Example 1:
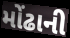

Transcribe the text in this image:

મોંઢાની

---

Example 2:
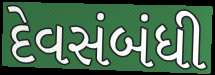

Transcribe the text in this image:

દેવસંબંધી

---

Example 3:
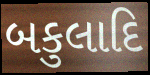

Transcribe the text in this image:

બકુલાદિ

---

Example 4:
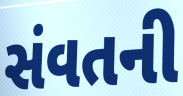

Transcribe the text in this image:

સંવતની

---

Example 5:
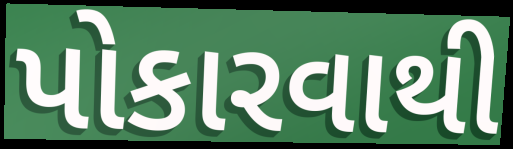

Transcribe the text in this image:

પોકારવાથી